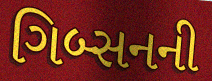
ગિબ્સનની